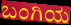
ಬಂಗಿಯ